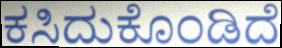
ಕಸಿದುಕೊಂಡಿದೆ